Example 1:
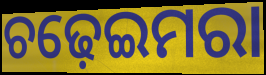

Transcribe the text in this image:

ଚଢ଼େଇମରା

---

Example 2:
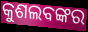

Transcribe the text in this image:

କୁଶଲବଙ୍କର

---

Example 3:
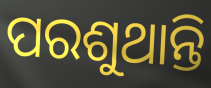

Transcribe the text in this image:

ପରଶୁଥାନ୍ତି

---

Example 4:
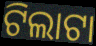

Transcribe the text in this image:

ଟିଲାଟା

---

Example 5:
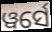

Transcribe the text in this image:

ୱର୍ସେ